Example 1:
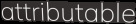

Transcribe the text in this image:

attributable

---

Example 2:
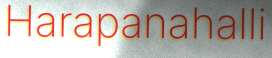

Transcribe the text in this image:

Harapanahalli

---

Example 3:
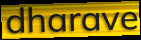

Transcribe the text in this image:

dharave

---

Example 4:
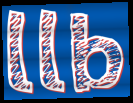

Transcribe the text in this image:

llb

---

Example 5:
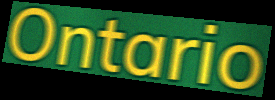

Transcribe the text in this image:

Ontario